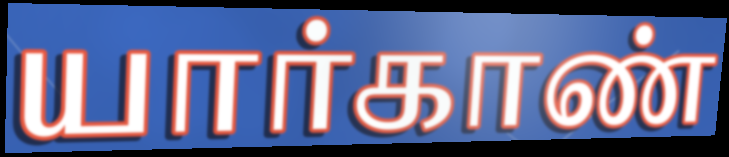
யார்காண்